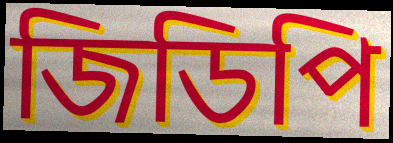
জিডিপি